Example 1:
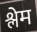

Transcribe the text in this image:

श्लेम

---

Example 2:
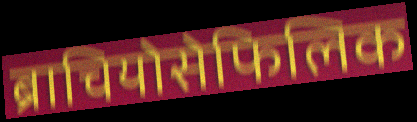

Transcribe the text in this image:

ब्राचियोसेफिलिक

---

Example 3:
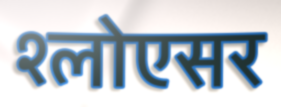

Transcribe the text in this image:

श्लोएसर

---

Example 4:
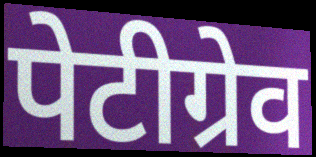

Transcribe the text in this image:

पेटीग्रेव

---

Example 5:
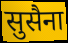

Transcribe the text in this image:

सुसैना